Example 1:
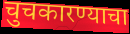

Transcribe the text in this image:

चुचकारण्याचा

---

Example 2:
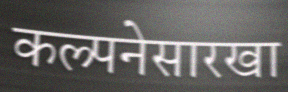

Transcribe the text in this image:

कल्पनेसारखा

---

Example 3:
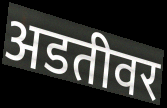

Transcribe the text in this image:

अडतीवर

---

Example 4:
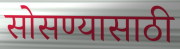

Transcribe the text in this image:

सोसण्यासाठी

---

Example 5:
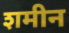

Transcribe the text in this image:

शमीन